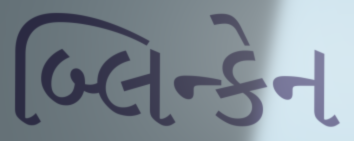
બ્લિન્કેન